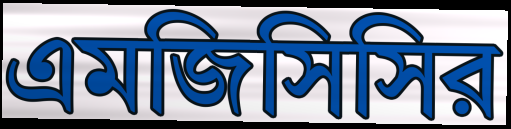
এমজিসিসির